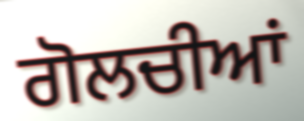
ਗੋਲਚੀਆਂ